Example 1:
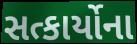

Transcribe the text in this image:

સત્કાર્યોના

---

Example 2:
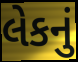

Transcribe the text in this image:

લેકનું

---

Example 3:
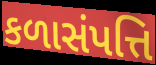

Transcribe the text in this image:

કળાસંપત્તિ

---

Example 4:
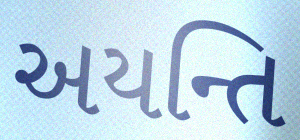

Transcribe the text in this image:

અયન્તિ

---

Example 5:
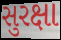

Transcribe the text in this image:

સુરક્ષા